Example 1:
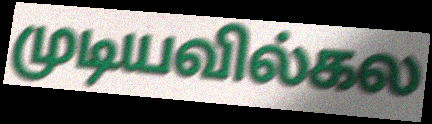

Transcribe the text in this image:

முடியவில்கல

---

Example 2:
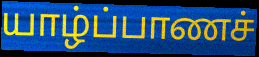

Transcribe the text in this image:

யாழ்ப்பாணச்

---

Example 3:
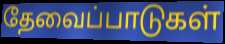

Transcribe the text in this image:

தேவைப்பாடுகள்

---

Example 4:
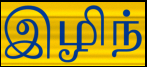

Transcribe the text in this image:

இழிந்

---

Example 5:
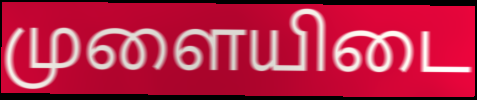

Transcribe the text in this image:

முளையிடை